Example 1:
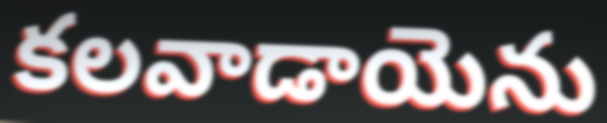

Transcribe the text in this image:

కలవాడాయెను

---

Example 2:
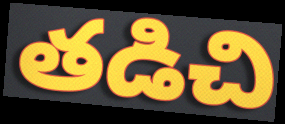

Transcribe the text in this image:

తడిచి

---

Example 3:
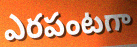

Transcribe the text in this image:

ఎరపంటగా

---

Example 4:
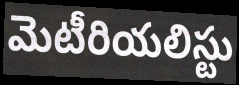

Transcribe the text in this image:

మెటీరియలిస్టు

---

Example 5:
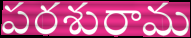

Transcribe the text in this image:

పరశురామ